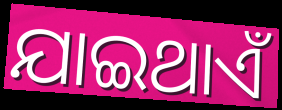
ଯାଇଥାଏଁ